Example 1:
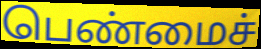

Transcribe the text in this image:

பெண்மைச்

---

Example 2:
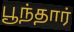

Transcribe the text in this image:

பூந்தார்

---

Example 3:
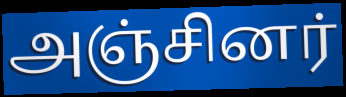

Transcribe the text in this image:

அஞ்சினர்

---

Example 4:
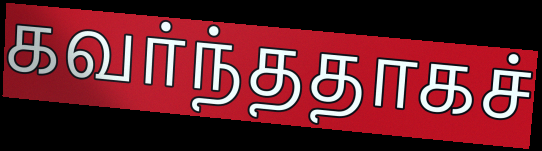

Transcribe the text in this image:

கவர்ந்ததாகச்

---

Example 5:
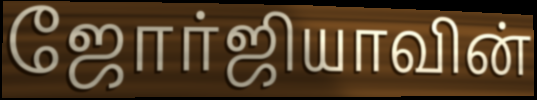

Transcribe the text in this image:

ஜோர்ஜியாவின்